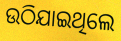
ଉଠିଯାଇଥିଲେ